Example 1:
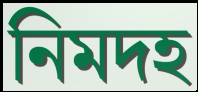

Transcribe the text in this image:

নিমদহ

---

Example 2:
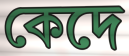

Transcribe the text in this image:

কেদে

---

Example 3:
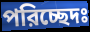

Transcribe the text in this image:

পরিচ্ছেদঃ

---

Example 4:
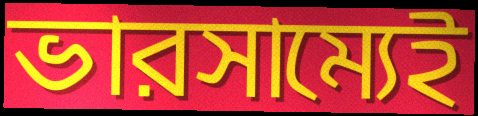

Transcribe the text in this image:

ভারসাম্যেই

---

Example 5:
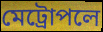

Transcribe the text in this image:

মেট্রোপলে